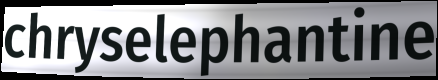
chryselephantine